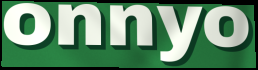
onnyo